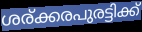
ശര്ക്കരപുരട്ടിക്ക്